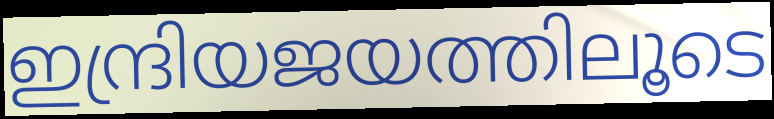
ഇന്ദ്രിയജയത്തിലൂടെ